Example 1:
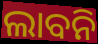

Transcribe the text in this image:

ଲାବନି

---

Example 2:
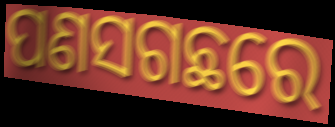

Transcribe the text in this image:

ପଣସଗଛରେ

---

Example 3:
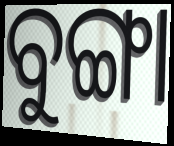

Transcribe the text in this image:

ବୁଙ୍ଗା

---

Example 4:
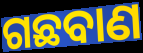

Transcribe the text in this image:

ଗଛବାଣ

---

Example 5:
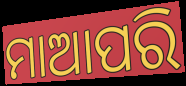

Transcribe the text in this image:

ମାଆପରି